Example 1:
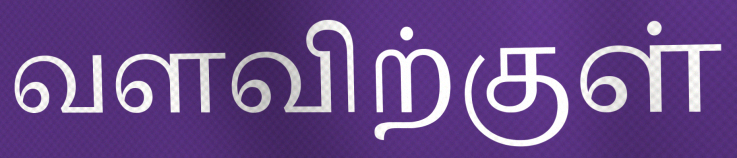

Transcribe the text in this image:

வளவிற்குள்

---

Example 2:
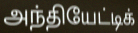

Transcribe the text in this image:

அந்தியேட்டிக்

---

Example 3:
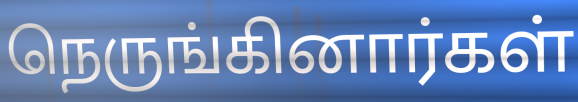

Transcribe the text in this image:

நெருங்கினார்கள்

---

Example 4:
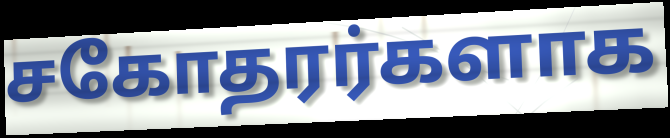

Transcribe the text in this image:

சகோதரர்களாக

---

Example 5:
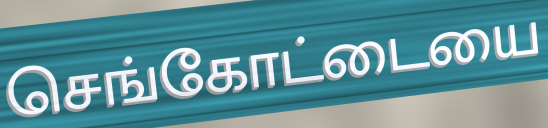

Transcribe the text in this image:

செங்கோட்டையை